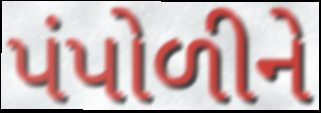
પંપોળીને